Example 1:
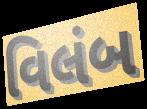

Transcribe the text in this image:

વિલંબ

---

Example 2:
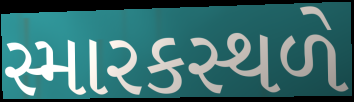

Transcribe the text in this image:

સ્મારકસ્થળે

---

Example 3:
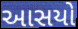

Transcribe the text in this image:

આસયો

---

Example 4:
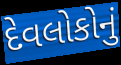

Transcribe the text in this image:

દેવલોકોનું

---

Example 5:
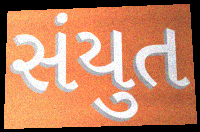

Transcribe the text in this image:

સંયુત